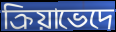
ক্রিয়াভেদে